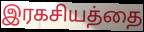
இரகசியத்தை